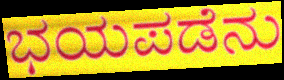
ಭಯಪಡೆನು